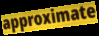
approximate